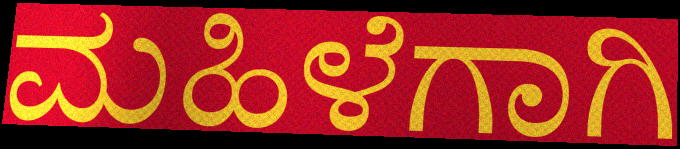
ಮಹಿಳೆಗಾಗಿ